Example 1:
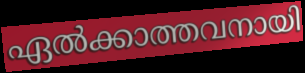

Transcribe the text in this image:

ഏൽക്കാത്തവനായി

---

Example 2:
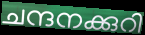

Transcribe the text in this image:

ചന്ദനക്കുറി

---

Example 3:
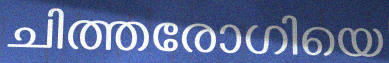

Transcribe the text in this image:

ചിത്തരോഗിയെ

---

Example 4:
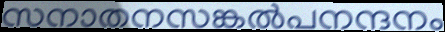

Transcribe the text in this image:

സനാതനസങ്കൽപനന്ദനം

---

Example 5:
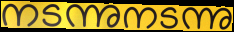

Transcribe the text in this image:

നടന്നുനടന്നു